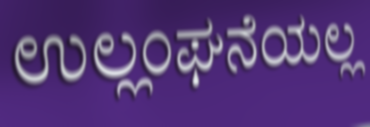
ಉಲ್ಲಂಘನೆಯಲ್ಲ